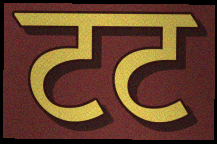
टट